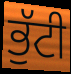
ਭੁੱਟੀ